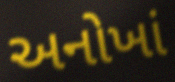
અનોખાં